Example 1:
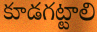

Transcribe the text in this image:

కూడగట్టాలి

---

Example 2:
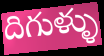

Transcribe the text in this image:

దిగుళ్ళు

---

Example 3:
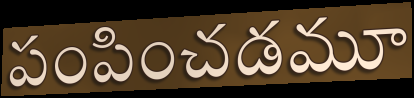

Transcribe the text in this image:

పంపించడమూ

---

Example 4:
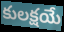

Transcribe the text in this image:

కులక్షయే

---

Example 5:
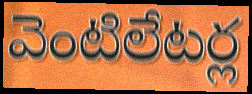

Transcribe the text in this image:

వెంటిలేటర్ల